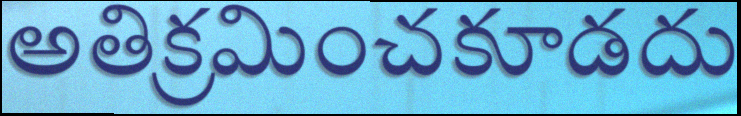
అతిక్రమించకూడదు